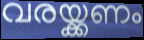
വരയ്ക്കണം